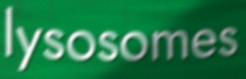
lysosomes